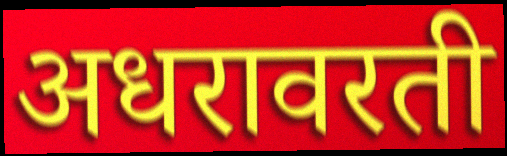
अधरावरती